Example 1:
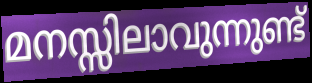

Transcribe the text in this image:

മനസ്സിലാവുന്നുണ്ട്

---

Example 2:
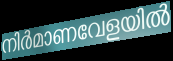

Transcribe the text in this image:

നിർമാണവേളയിൽ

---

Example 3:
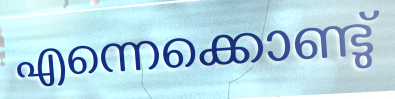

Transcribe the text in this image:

എന്നെക്കൊണ്ടു്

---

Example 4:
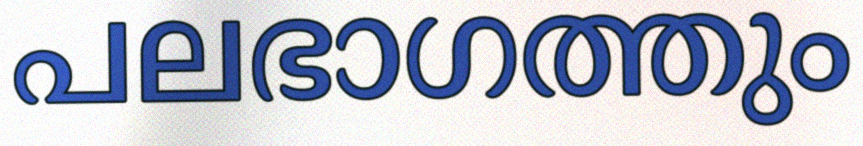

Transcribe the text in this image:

പലഭാഗത്തും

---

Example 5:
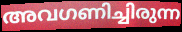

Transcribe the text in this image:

അവഗണിച്ചിരുന്ന